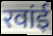
रवांई